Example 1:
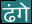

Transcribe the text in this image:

ढंगे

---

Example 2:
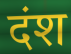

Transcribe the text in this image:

दंश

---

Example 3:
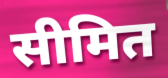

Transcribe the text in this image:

सीमित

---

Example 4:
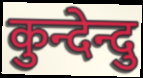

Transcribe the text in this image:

कुन्देन्दु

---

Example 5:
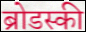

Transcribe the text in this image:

ब्रोडस्की